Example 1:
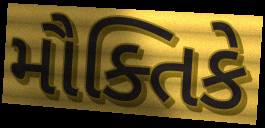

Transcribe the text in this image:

મૌક્તિકે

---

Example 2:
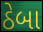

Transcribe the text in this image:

ઠેબા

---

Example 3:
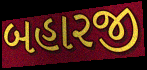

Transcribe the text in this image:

બહારજી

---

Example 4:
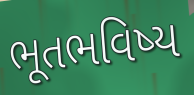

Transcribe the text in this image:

ભૂતભવિષ્ય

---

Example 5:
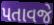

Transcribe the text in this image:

પતાવજે